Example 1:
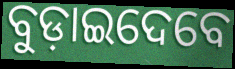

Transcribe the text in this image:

ବୁଡ଼ାଇଦେବେ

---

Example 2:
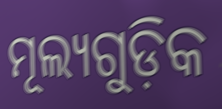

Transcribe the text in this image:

ମୂଲ୍ୟଗୁଡ଼ିକ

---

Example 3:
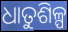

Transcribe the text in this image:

ଧାତୁଶିଳ୍ପ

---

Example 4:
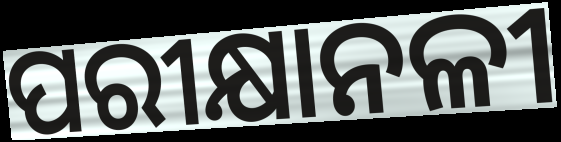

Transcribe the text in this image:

ପରୀକ୍ଷାନଳୀ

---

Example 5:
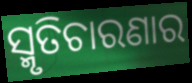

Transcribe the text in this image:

ସ୍ମୃତିଚାରଣାର